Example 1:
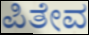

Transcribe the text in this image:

ಪಿತೇವ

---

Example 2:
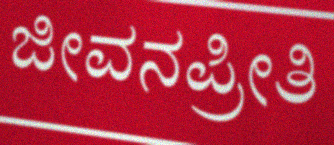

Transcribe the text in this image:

ಜೀವನಪ್ರೀತಿ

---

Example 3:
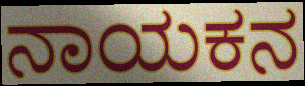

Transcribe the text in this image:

ನಾಯಕನ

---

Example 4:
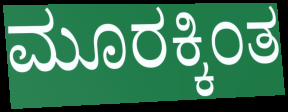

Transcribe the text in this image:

ಮೂರಕ್ಕಿಂತ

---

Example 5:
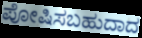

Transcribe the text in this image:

ಪೋಷಿಸಬಹುದಾದ